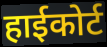
हाईकोर्ट